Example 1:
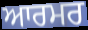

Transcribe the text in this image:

ਆਰਮਰ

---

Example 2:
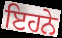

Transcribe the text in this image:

ਇਹਨੇ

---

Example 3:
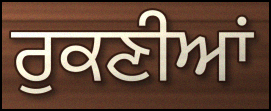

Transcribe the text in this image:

ਰੁਕਣੀਆਂ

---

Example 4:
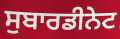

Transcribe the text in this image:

ਸੁਬਾਰਡੀਨੇਟ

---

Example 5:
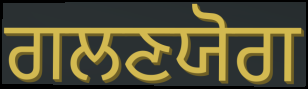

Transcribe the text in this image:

ਗਲਣਯੋਗ